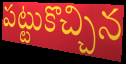
పట్టుకొచ్చిన